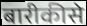
बारीकीसे